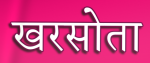
खरसोता